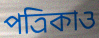
পত্রিকাও